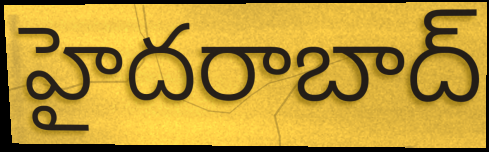
హైదరాబాద్